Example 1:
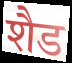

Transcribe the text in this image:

शैड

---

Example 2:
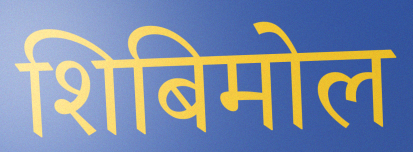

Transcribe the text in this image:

शिबिमोल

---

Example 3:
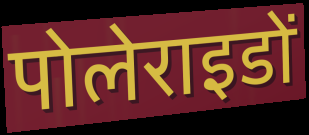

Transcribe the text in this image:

पोलेराइडों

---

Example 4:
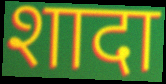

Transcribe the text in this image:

शादा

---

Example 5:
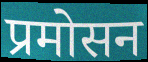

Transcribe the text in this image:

प्रमोसन